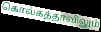
கொல்கத்தாவிலும்